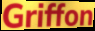
Griffon